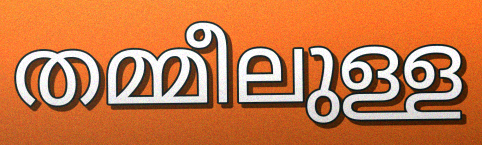
തമ്മീലുള്ള